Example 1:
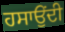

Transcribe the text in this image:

ਹਸਾਉਂਦੀ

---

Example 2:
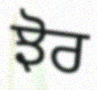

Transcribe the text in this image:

ਝੋਰ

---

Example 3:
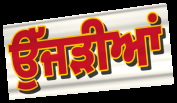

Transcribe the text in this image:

ਉੱਜੜੀਆਂ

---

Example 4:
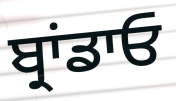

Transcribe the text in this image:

ਬ੍ਰਾਂਡਾਓ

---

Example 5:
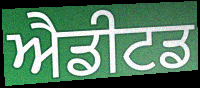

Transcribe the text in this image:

ਐਡੀਟਡ